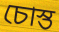
চোস্ত